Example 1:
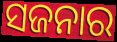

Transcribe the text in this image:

ସଜନାର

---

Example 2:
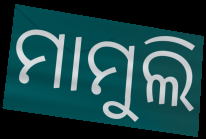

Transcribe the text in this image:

ମାମୁଲି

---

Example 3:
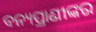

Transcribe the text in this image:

ବନ୍ୟପ୍ରାଣୀଙ୍କର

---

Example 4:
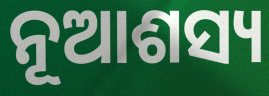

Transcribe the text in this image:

ନୂଆଶସ୍ୟ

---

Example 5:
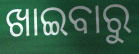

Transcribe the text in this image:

ଖାଇବାରୁ